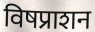
विषप्राशन